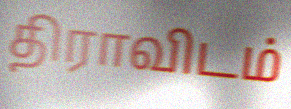
திராவிடம்